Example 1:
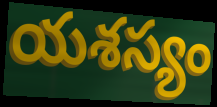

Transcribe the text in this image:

యశస్యం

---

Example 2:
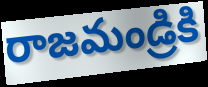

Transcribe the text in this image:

రాజమండ్రికి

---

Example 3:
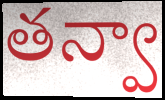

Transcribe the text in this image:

తన్వా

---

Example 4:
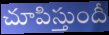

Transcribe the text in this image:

చూపిస్తుందీ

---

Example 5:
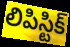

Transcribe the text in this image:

లిపిస్టిక్